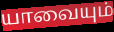
யாவையும்